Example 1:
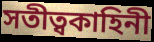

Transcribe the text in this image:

সতীত্বকাহিনী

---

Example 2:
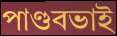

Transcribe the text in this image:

পাণ্ডবভাই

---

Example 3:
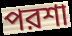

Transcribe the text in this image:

পরশা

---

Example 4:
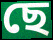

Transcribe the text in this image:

ছে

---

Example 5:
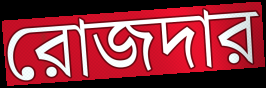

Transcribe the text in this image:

রোজদার